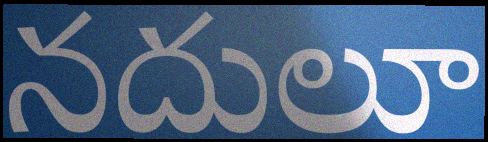
నదులూ